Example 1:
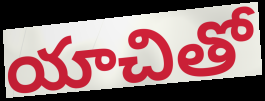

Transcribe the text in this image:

యాచితో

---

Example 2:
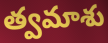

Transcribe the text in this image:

త్వమాశు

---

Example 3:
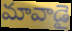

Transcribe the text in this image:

మావాడై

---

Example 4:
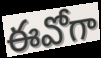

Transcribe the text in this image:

ఈవోగా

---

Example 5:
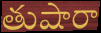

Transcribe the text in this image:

తుషారా